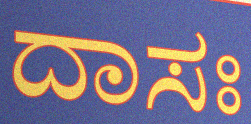
ದಾಸಃ